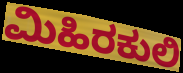
ಮಿಹಿರಕುಲಿ